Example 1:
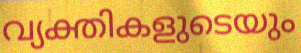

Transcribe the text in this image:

വ്യക്തികളുടെയും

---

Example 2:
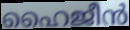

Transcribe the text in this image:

ഹൈജീൻ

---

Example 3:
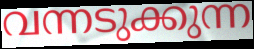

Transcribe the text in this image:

വന്നടുക്കുന്ന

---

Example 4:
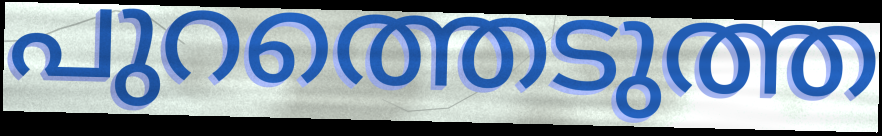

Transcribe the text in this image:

പുറത്തെടുത്ത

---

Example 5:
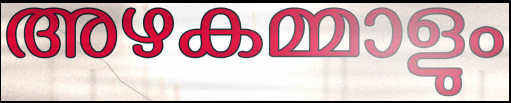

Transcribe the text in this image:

അഴകമ്മാളും